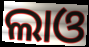
ଲାଓ